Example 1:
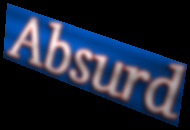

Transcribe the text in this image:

Absurd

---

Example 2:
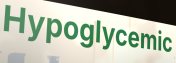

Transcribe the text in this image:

Hypoglycemic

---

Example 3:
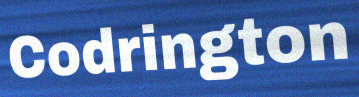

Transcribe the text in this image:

Codrington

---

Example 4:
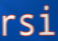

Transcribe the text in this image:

rsi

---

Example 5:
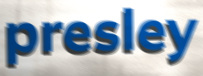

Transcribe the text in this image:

presley